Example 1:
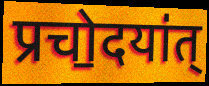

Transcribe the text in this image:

प्रचो॒दया॑त्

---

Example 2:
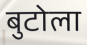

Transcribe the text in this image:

बुटोला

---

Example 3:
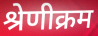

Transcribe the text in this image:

श्रेणीक्रम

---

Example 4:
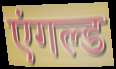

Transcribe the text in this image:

एंगल्ड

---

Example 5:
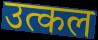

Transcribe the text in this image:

उत्कल